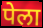
पेला